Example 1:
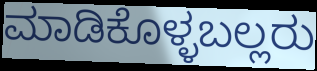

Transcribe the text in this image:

ಮಾಡಿಕೊಳ್ಳಬಲ್ಲರು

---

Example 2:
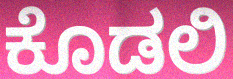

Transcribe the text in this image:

ಕೊಡಲಿ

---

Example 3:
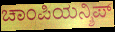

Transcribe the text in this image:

ಚಾಂಪಿಯನ್ಶಿಪ್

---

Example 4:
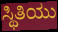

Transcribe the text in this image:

ಸ್ಥಿತಿಯು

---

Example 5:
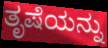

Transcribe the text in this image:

ತೃಷೆಯನ್ನು